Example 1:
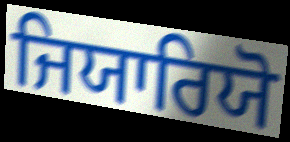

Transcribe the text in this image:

ਜਿਯਾਰਿਯੋ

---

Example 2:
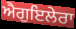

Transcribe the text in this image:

ਐਗੁਇਲੇਰਾ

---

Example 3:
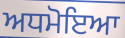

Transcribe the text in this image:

ਅਧਮੋਇਆ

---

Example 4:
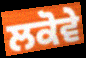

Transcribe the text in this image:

ਲਕੋਵੇ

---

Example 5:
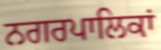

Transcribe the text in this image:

ਨਗਰਪਾਲਿਕਾਂ